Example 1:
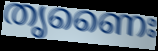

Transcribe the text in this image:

തൃണൈഃ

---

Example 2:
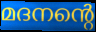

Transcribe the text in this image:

മദനന്റെ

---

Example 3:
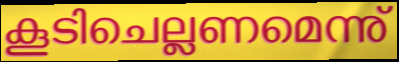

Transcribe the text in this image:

കൂടിചെല്ലണമെന്നു്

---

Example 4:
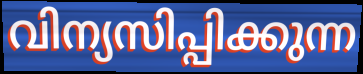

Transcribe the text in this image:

വിന്യസിപ്പിക്കുന്ന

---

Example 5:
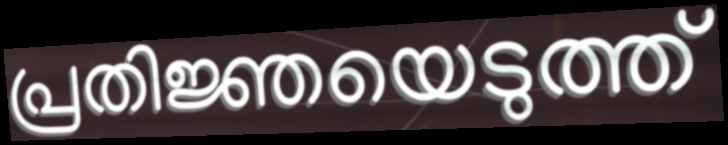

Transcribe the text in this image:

പ്രതിജ്ഞയെടുത്ത്